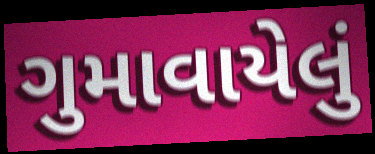
ગુમાવાયેલું